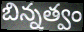
బిన్నత్వం